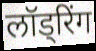
लॉड्रिंग